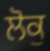
ਲੋਕੁ